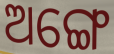
ଅଙ୍ଗେ